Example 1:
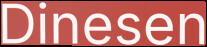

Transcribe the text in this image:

Dinesen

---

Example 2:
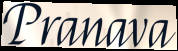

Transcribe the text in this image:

Pranava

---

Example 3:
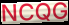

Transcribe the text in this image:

NCQG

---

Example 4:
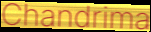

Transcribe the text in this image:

Chandrima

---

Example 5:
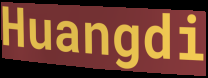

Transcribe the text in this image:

Huangdi